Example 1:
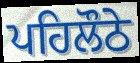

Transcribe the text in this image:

ਪਹਿਲੌਠੇ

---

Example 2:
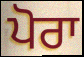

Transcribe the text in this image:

ਪੋਰਾ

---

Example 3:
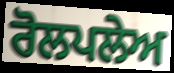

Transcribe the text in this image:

ਰੋਲਪਲੇਅ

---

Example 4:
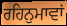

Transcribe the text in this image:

ਰਹਿਨੁਮਾਵਾਂ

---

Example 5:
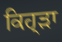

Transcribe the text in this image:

ਕਿਹ੍ੜਾ